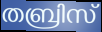
തബ്രിസ്